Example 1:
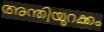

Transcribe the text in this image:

അന്തിയുറക്കം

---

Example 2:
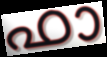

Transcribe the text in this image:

ഫാ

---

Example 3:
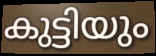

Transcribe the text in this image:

കുട്ടിയും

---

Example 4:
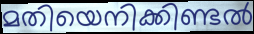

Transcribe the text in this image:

മതിയെനിക്കിണ്ടൽ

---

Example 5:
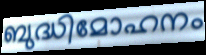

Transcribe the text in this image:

ബുദ്ധിമോഹനം